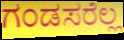
ಗಂಡಸರೆಲ್ಲ